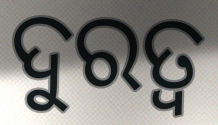
ଦୁରତ୍ଵ